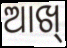
ଆଖ୍